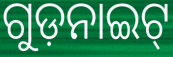
ଗୁଡ଼ନାଇଟ୍